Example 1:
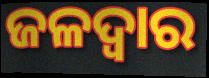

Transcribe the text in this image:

ଜଳଦ୍ୱାର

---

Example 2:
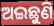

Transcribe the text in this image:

ଅଇଛୁଣି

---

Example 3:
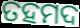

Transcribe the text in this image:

ତହମଦ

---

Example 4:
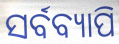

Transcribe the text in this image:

ସର୍ବବ୍ୟାପି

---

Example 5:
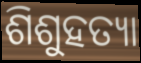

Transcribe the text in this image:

ଶିଶୁହତ୍ୟା